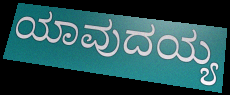
ಯಾವುದಯ್ಯ